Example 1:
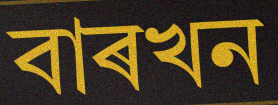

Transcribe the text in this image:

বাৰখন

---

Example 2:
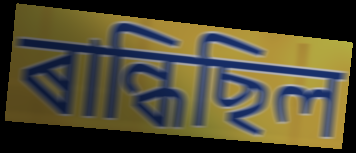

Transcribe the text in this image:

ৰান্ধিছিল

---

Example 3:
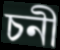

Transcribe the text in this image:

চনী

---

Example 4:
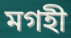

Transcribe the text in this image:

মগহী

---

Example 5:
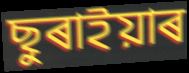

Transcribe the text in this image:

ছুৰাইয়াৰ